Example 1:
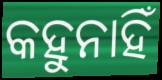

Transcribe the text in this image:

କହୁନାହିଁ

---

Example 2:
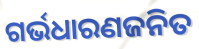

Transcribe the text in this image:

ଗର୍ଭଧାରଣଜନିତ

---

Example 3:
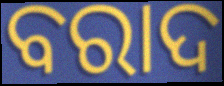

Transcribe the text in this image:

ବରାଦ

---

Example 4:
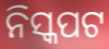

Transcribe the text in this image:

ନିସ୍କପଟ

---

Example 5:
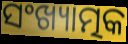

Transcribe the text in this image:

ସଂଖ୍ୟାତ୍ମକ